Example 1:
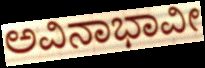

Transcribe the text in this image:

ಅವಿನಾಭಾವೀ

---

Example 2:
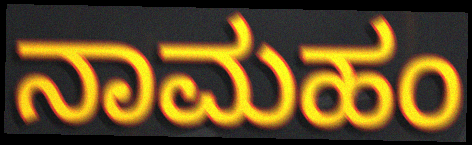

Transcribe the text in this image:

ನಾಮಹಂ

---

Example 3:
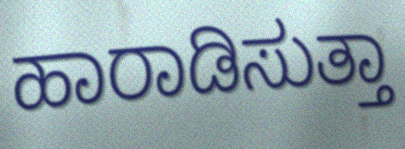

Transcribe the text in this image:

ಹಾರಾಡಿಸುತ್ತಾ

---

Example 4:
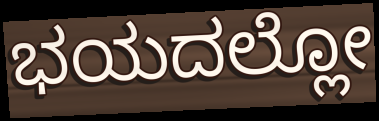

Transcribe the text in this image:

ಭಯದಲ್ಲೋ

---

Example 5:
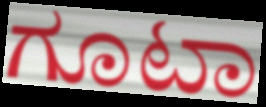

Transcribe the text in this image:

ಗೂಟಾ